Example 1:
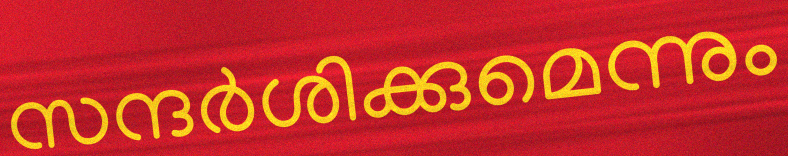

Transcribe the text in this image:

സന്ദർശിക്കുമെന്നും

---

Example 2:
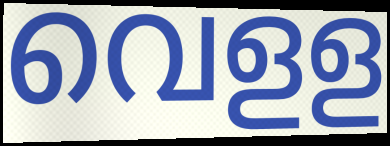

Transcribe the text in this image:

വെളള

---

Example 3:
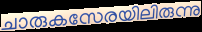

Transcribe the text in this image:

ചാരുകസേരയിലിരുന്നു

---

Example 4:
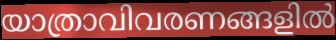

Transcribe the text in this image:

യാത്രാവിവരണങ്ങളിൽ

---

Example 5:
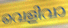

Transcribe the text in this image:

വെളിവാ